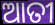
ଆତୀ